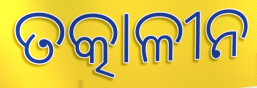
ତତ୍କାଳୀନ